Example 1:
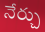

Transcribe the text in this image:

నేర్చు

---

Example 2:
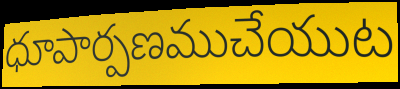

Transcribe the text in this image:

ధూపార్పణముచేయుట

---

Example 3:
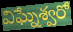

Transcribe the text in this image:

విఘ్నేశ్వరో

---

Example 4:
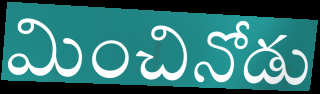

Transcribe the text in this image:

మించినోడు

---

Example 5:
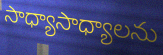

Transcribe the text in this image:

సాధ్యాసాధ్యాలను